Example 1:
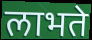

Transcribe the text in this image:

लाभते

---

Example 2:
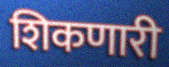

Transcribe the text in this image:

शिकणारी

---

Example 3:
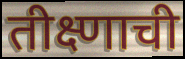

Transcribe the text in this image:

तीक्ष्णाची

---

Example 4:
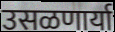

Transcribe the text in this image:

उसळणार्या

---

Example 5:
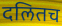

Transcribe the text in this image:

दलितच